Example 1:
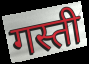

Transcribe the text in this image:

गस्ती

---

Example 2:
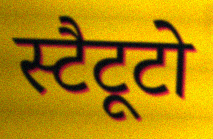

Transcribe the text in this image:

स्टैटूटो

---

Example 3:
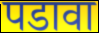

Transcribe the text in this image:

पडावा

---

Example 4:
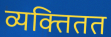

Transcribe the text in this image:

व्यक्तितत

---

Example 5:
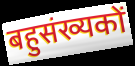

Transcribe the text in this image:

बहुसंख्यकों